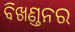
ବିଖଣ୍ଡନର